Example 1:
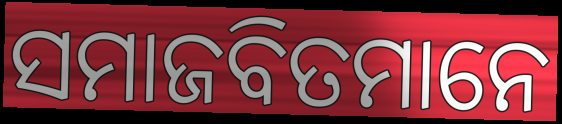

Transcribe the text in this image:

ସମାଜବିତମାନେ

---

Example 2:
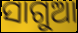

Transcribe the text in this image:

ସାଗୁଆ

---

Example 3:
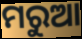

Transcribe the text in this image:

ମରୁଆ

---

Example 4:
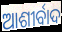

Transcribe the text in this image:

ଆଶୀର୍ବାଦ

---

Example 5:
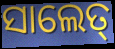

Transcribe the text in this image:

ସାଲେତ୍